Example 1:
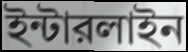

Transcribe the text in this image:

ইন্টারলাইন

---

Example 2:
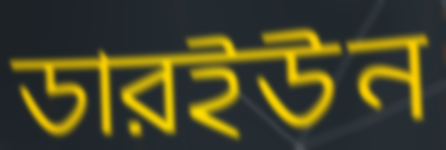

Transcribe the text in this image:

ডারইউন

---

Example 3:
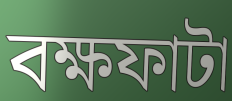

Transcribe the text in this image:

বক্ষফাটা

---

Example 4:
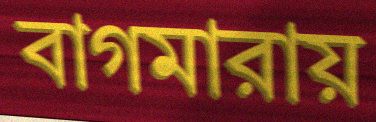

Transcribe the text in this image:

বাগমারায়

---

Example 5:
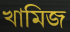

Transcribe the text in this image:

খামিজ